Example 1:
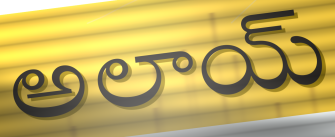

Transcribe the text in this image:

అలాయ్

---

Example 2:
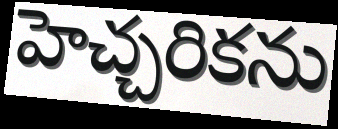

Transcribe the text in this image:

హెచ్చరికను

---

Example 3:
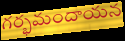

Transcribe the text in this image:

గర్భమందాయన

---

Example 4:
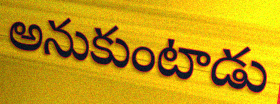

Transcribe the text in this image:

అనుకుంటాడు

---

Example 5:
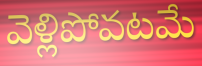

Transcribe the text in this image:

వెళ్లిపోవటమే